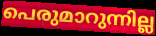
പെരുമാറുന്നില്ല